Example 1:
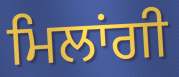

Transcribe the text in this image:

ਮਿਲਾਂਗੀ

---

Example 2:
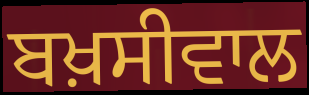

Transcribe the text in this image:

ਬਖ਼ਸੀਵਾਲ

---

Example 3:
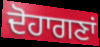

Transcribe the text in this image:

ਦੋਹਾਗਣਾਂ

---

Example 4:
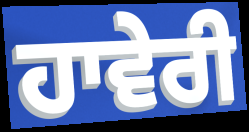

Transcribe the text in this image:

ਹਾਵੇਰੀ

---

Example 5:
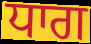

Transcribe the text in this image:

ਧਾਗ